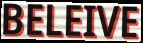
BELEIVE